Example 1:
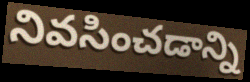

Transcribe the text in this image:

నివసించడాన్ని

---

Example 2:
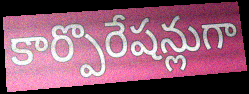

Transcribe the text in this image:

కార్పొరేషన్లుగా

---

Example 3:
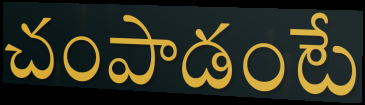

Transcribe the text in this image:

చంపాడంటే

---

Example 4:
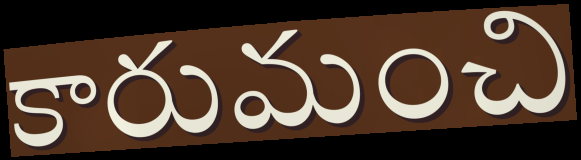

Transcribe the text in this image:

కారుమంచి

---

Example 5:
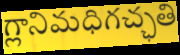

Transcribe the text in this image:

గ్లానిమధిగచ్ఛతి